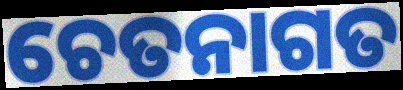
ଚେତନାଗତ